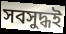
সবসুদ্ধই